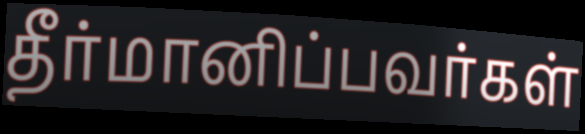
தீர்மானிப்பவர்கள்